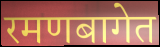
रमणबागेत